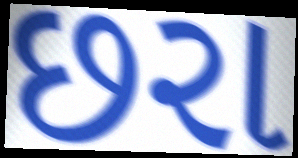
છરા